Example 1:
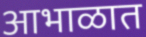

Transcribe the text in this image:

आभाळात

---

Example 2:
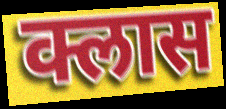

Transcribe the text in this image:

क्लास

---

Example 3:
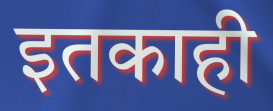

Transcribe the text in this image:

इतकाही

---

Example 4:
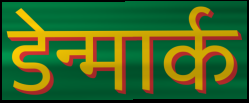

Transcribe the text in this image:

डेन्मार्क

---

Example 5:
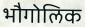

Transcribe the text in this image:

भौगोलिक